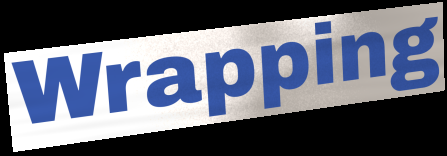
Wrapping